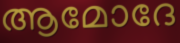
ആമോദേ